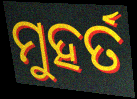
ମୁହର୍ତ